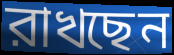
রাখছেন